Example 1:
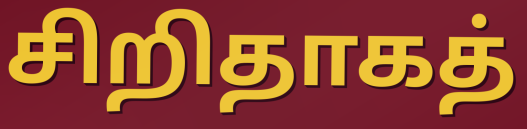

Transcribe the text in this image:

சிறிதாகத்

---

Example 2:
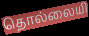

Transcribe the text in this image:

தொல்லையி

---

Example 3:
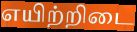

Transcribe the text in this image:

எயிற்றிடை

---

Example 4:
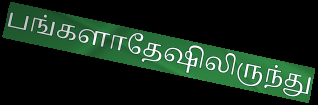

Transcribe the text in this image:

பங்களாதேஷிலிருந்து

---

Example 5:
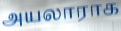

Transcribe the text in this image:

அயலாராக